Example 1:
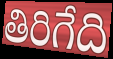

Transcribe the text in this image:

తిరిగేది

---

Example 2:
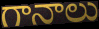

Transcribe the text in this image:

గానాలు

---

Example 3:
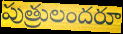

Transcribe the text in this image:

పుత్రులందరూ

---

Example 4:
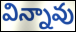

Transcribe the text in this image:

విన్నావు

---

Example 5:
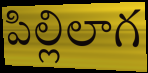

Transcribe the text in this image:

పిల్లిలాగ